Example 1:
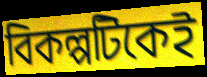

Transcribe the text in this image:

বিকল্পটিকেই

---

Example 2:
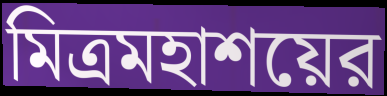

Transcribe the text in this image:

মিত্রমহাশয়ের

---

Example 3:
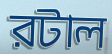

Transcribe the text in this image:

রটাল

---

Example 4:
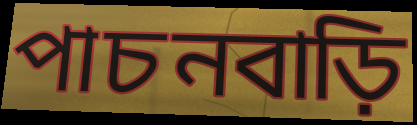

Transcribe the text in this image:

পাচনবাড়ি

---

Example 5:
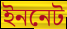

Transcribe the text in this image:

ইননেট